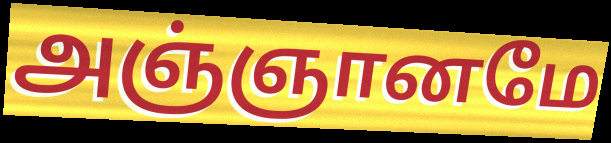
அஞ்ஞானமே